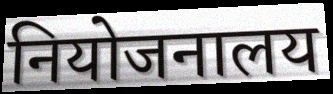
नियोजनालय